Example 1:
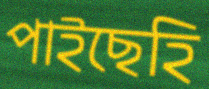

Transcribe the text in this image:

পাইছেহি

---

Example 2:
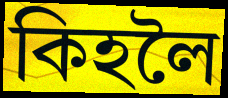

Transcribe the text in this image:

কিহলৈ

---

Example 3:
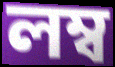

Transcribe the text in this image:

লম্ব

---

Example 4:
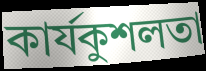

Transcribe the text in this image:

কাৰ্যকুশলতা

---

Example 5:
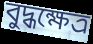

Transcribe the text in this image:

বুদ্ধক্ষেত্ৰ